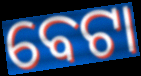
ବେଟା